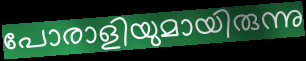
പോരാളിയുമായിരുന്നു